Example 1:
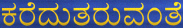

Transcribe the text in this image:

ಕರೆದುತರುವಂತೆ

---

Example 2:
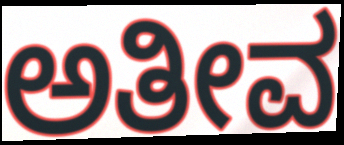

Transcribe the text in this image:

ಅತೀವ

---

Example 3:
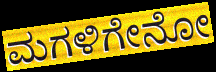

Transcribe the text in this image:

ಮಗಳಿಗೇನೋ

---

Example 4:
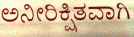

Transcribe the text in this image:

ಅನೀರಿಕ್ಷಿತವಾಗಿ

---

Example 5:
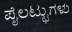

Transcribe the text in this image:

ಪೈಲಟ್ಟುಗಳು